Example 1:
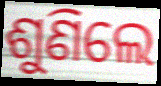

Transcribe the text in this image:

ଶୁଣିଲେ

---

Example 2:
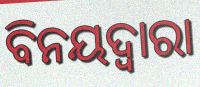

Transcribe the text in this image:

ବିନୟଦ୍ୱାରା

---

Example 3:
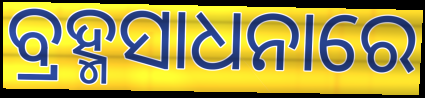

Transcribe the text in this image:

ବ୍ରହ୍ମସାଧନାରେ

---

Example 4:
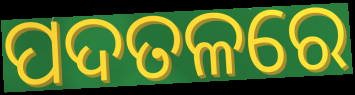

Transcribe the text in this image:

ପଦତଳରେ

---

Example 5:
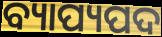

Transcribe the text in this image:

ବ୍ୟାପ୍ୟପଦ